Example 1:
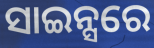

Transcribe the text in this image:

ସାଇନ୍ସରେ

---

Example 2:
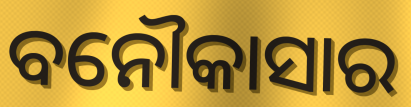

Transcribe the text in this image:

ବନୌକାସାର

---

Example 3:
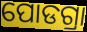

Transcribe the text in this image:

ପୋଡଗ୍ରା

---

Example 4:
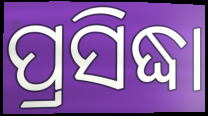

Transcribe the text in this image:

ପ୍ରସିଦ୍ଧା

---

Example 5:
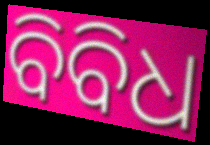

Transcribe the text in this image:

ବିବିଧ